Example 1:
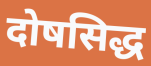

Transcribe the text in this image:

दोषसिद्ध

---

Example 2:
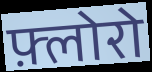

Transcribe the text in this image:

फ़्लोरो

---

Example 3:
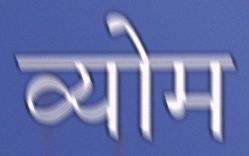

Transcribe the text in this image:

व्योम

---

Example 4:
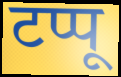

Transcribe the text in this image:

टप्पू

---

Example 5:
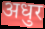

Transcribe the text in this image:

अधुर